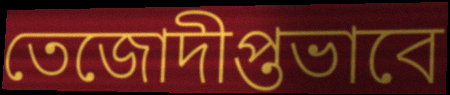
তেজোদীপ্তভাবে